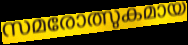
സമരോത്സുകമായ